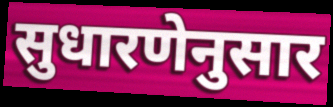
सुधारणेनुसार